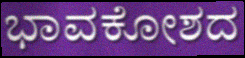
ಭಾವಕೋಶದ